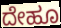
ದೇಹೂ